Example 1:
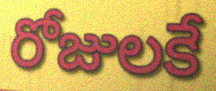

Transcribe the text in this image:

రోజులకే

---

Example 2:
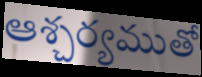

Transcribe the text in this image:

ఆశ్చర్యముతో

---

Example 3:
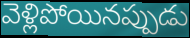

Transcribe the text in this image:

వెళ్లిపోయినప్పుడు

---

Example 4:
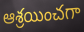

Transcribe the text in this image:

ఆశ్రయించగా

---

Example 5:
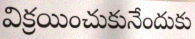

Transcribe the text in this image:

విక్రయించుకునేందుకు